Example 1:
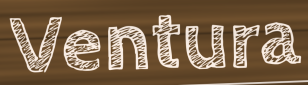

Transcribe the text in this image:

Ventura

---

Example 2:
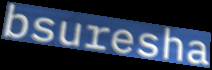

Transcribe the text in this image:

bsuresha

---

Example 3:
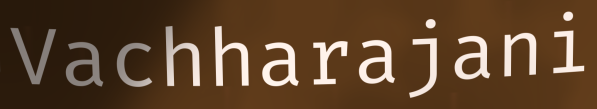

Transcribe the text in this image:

Vachharajani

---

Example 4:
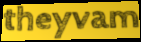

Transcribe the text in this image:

theyvam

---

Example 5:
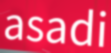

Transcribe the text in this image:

asadi